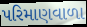
પરિમાણવાળા